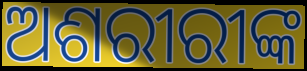
ଅଶରୀରୀଙ୍କ